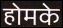
होमके